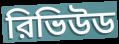
রিভিউড